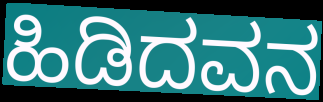
ಹಿಡಿದವನ